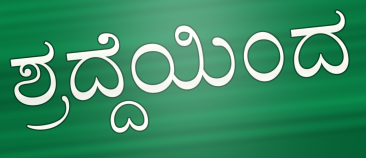
ಶ್ರದ್ದೆಯಿಂದ